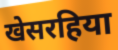
खेसरहिया